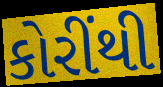
કોરીંથી